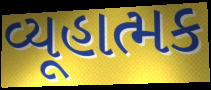
વ્યૂહાત્મક